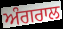
ਅੰਗਰਾਲ